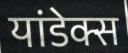
यांडेक्स